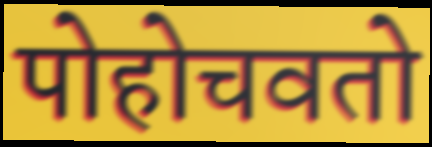
पोहोचवतो